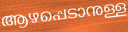
ആഴപ്പെടാനുള്ള